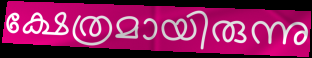
ക്ഷേത്രമായിരുന്നു